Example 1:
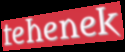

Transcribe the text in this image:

tehenek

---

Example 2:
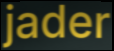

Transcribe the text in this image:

jader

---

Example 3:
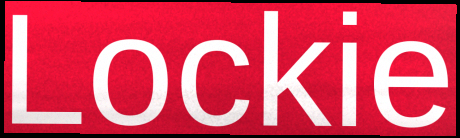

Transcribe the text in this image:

Lockie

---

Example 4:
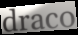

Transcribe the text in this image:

draco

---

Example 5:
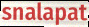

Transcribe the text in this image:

snalapat